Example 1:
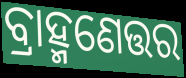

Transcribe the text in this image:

ବ୍ରାହ୍ମଣେତ୍ତର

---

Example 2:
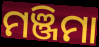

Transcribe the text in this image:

ମଞ୍ଜିମା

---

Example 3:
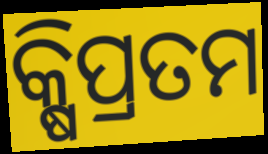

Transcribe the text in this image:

କ୍ଷିପ୍ରତମ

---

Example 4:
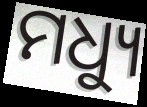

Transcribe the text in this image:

ମଧ୍ୟୁ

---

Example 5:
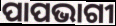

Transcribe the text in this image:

ପାପଭାଗୀ